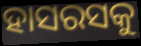
ହାସରସକୁ